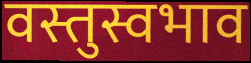
वस्तुस्वभाव